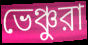
ভেঞ্চুরা